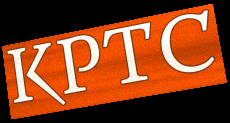
KPTC